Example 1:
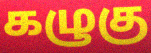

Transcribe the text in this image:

கழுகு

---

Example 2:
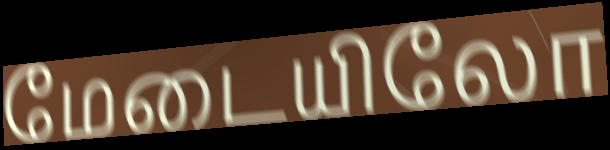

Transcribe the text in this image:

மேடையிலோ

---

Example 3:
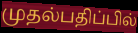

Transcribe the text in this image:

முதல்பதிப்பில்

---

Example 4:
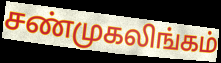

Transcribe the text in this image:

சண்முகலிங்கம்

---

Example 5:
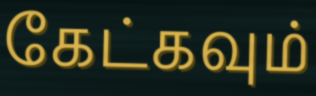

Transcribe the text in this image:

கேட்கவும்